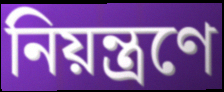
নিয়ন্ত্রণে